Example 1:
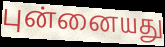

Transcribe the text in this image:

புன்னையது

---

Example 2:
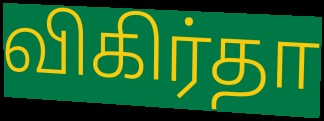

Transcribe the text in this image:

விகிர்தா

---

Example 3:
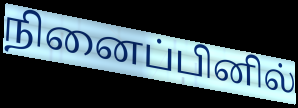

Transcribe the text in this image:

நினைப்பினில்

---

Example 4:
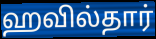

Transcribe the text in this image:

ஹவில்தார்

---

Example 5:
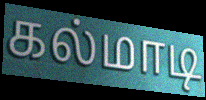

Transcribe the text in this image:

கல்மாடி